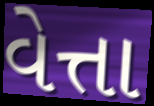
વેત્તા